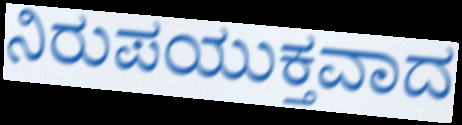
ನಿರುಪಯುಕ್ತವಾದ